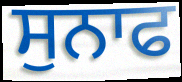
ਸੁਨਾਫ